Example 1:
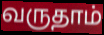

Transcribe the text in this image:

வருதாம்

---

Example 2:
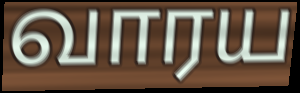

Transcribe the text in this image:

வாரய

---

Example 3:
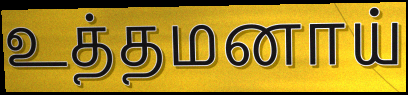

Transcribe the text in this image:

உத்தமனாய்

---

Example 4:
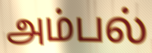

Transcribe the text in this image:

அம்பல்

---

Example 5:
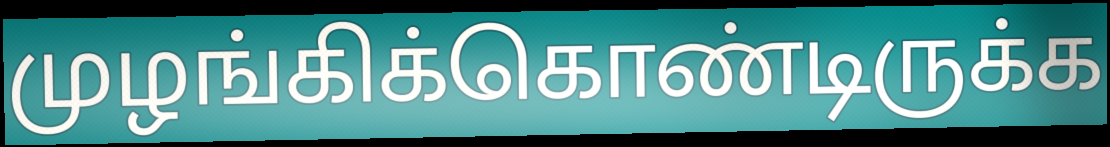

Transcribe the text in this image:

முழங்கிக்கொண்டிருக்க